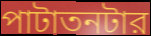
পাটাতনটার